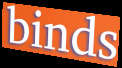
binds